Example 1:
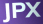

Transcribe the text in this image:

JPX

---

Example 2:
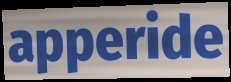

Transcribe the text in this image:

apperide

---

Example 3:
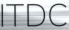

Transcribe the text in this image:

ITDC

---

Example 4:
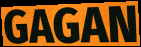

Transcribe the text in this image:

GAGAN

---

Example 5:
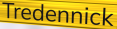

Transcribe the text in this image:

Tredennick